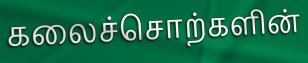
கலைச்சொற்களின்